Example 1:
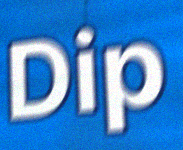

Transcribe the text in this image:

Dip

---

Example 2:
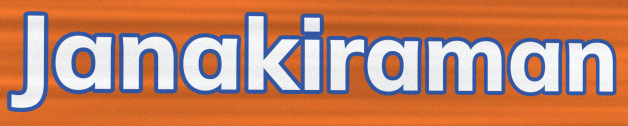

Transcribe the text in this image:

Janakiraman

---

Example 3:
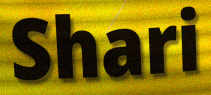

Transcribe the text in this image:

Shari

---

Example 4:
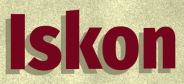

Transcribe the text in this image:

Iskon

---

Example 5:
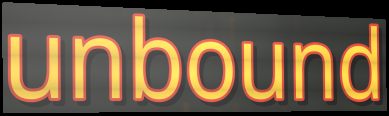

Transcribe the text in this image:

unbound